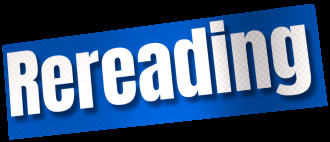
Rereading